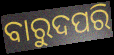
ବାରୁଦପରି